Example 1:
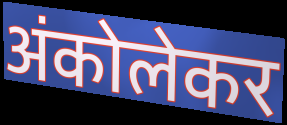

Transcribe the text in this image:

अंकोलेकर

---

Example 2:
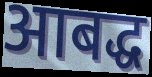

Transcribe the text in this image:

आबद्ध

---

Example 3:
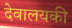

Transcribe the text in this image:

देवालयकी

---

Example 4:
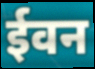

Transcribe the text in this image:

ईवन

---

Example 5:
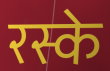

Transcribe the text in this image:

रस्के